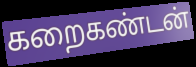
கறைகண்டன்